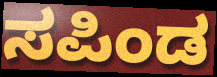
ಸಪಿಂಡ